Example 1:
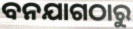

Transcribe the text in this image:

ବନଯାଗଠାରୁ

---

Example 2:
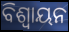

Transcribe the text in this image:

ବିଶ୍ଵାୟନ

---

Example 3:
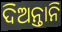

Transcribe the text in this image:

ଦିଅନ୍ତାନି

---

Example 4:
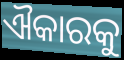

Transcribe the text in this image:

ଐକାରକୁ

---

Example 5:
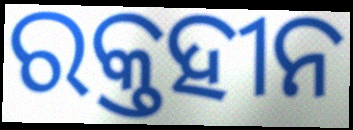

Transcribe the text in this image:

ରକ୍ତହୀନ